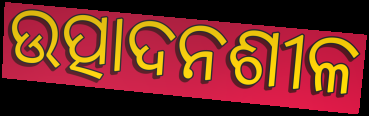
ଉତ୍ପାଦନଶୀଳ